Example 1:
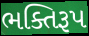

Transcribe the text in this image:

ભક્તિરૂપ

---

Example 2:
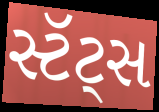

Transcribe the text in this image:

સ્ટૅટ્સ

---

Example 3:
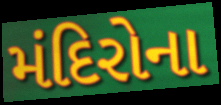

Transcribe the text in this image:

મંદિરોના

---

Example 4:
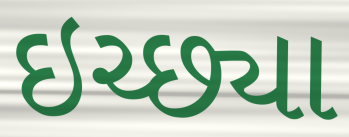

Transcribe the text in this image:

ઇચ્છ્યા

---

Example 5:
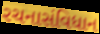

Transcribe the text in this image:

રચનાસંવિધાન